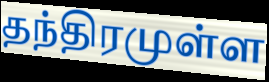
தந்திரமுள்ள